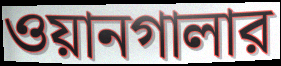
ওয়ানগালার